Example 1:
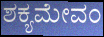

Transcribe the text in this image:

ಶಕ್ಯಮೇವಂ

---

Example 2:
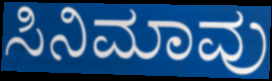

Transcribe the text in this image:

ಸಿನಿಮಾವು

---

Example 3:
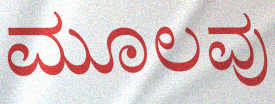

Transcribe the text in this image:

ಮೂಲವು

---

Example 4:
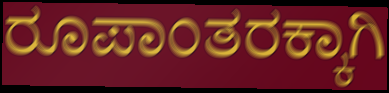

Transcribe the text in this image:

ರೂಪಾಂತರಕ್ಕಾಗಿ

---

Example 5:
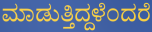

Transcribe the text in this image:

ಮಾಡುತ್ತಿದ್ದಳೆಂದರೆ